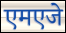
एमएजे